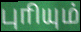
புரியும்